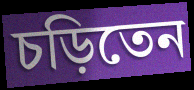
চড়িতেন